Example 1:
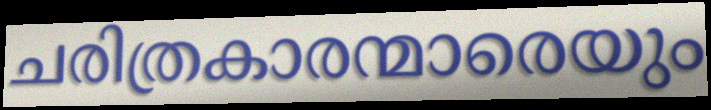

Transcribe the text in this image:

ചരിത്രകാരന്മാരെയും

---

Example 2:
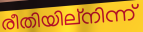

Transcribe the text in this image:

രീതിയില്നിന്ന്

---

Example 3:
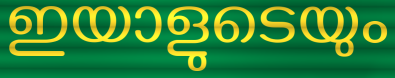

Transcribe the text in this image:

ഇയാളുടെയും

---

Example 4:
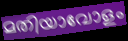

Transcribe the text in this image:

മതിയാവോളം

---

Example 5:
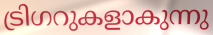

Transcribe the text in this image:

ട്രിഗറുകളാകുന്നു